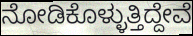
ನೋಡಿಕೊಳ್ಳುತ್ತಿದ್ದೇವೆ